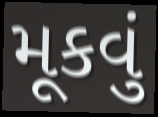
મૂકવું